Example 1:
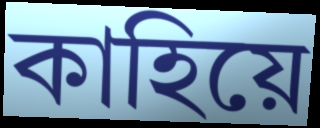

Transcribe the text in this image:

কাহিয়ে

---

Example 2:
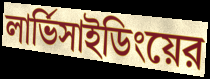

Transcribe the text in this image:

লার্ভিসাইডিংয়ের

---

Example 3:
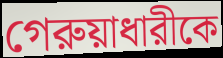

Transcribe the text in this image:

গেরুয়াধারীকে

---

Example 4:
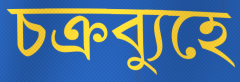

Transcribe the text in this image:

চক্রব্যুহে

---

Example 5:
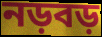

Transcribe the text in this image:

নড়বড়